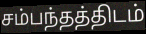
சம்பந்தத்திடம்